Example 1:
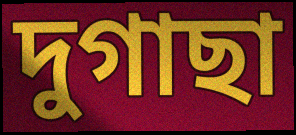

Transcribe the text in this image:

দুগাছা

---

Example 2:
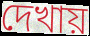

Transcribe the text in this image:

দেখায়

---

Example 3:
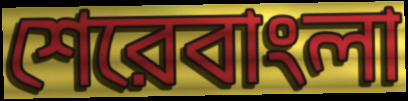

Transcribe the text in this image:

শেরেবাংলা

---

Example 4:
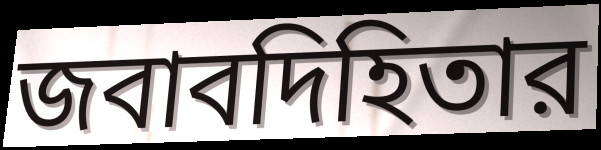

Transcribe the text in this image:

জবাবদিহিতার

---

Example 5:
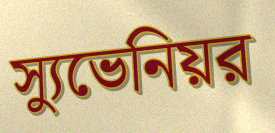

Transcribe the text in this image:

স্যুভেনিয়র